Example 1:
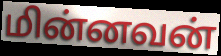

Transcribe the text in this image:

மின்னவன்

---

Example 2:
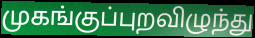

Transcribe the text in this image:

முகங்குப்புறவிழுந்து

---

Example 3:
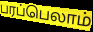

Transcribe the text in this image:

பரப்பெலாம்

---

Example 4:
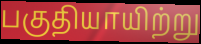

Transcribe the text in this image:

பகுதியாயிற்று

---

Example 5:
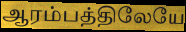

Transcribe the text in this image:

ஆரம்பத்திலேயே